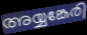
അയ്യങ്കേരി